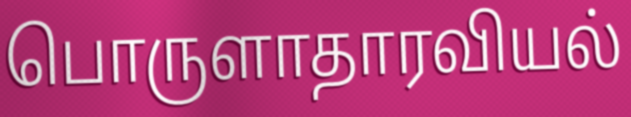
பொருளாதாரவியல்